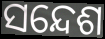
ସନ୍ଦେଶ